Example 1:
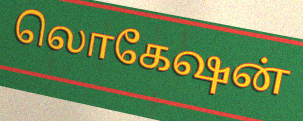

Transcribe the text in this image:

லொகேஷன்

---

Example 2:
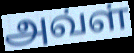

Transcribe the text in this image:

அவ்ள்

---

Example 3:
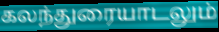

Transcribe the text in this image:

கலந்துரையாடலும்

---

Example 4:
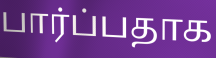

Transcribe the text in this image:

பார்ப்பதாக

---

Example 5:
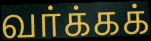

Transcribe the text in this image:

வர்க்கக்